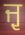
ਜ੍ਦ